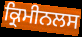
ਕ੍ਰਿਮੀਨਲਸ